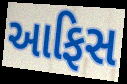
આફિસ